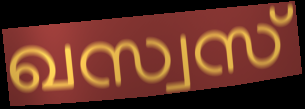
ഖസ്വസ്